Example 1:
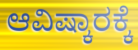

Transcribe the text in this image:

ಆವಿಷ್ಕಾರಕ್ಕೆ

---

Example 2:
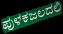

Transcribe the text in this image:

ಪುಳಕಜಲದಲಿ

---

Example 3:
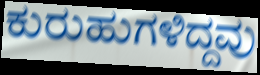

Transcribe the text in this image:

ಕುರುಹುಗಳಿದ್ದವು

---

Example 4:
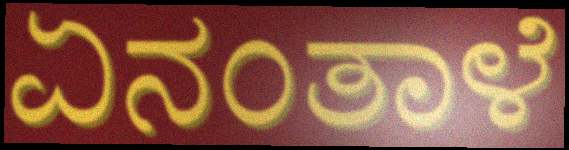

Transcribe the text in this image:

ಏನಂತಾಳೆ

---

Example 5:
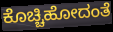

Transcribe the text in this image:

ಕೊಚ್ಚಿಹೋದಂತೆ